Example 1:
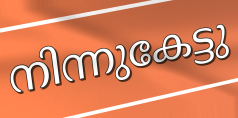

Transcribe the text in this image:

നിന്നുകേട്ടു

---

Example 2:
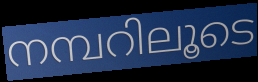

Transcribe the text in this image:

നമ്പറിലൂടെ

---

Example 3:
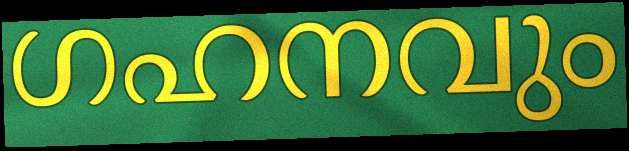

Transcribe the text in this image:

ഗഹനവും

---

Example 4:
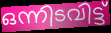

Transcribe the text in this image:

ഒന്നിടവിട്ട്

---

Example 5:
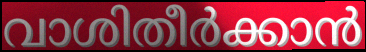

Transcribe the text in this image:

വാശിതീർക്കാൻ